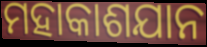
ମହାକାଶଯାନ